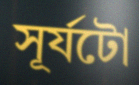
সূৰ্যটো